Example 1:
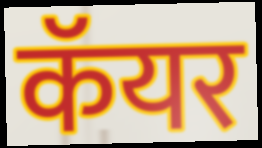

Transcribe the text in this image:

कॅयर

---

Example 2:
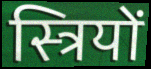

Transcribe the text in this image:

स्‍त्रियों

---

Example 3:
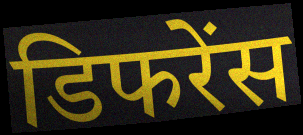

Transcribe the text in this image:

डिफरेंस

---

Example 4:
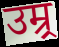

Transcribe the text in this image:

उम्र्र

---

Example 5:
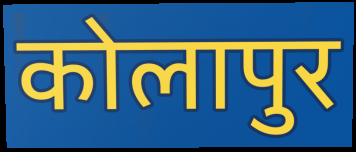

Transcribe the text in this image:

कोलापुर